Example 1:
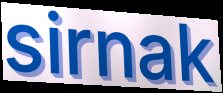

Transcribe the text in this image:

sirnak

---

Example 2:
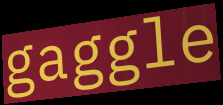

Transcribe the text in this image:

gaggle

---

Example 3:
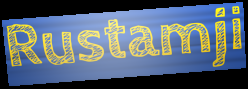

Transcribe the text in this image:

Rustamji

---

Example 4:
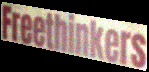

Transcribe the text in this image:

Freethinkers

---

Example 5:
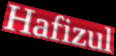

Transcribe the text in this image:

Hafizul